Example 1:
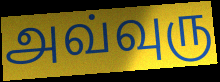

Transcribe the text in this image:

அவ்வுரு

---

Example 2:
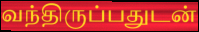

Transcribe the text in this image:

வந்திருப்பதுடன்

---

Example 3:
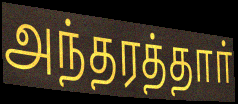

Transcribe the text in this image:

அந்தரத்தார்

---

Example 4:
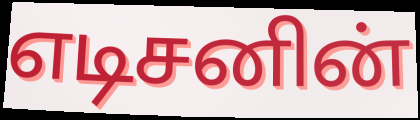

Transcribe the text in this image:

எடிசனின்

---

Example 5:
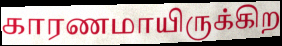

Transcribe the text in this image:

காரணமாயிருக்கிற